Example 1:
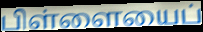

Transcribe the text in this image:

பிள்ளையைப்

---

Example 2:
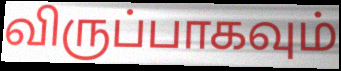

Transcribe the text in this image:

விருப்பாகவும்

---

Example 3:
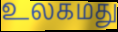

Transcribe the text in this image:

உலகமது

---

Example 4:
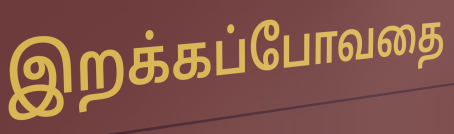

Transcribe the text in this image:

இறக்கப்போவதை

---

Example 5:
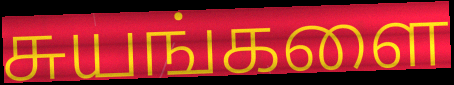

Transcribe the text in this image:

சுயங்களை